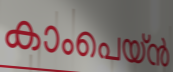
കാംപെയ്ൻ